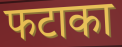
फटाका